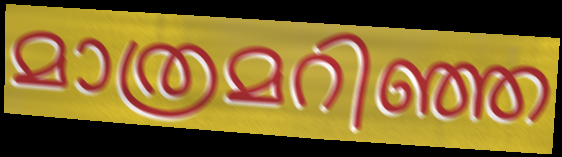
മാത്രമറിഞ്ഞ